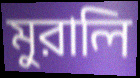
মুরালি